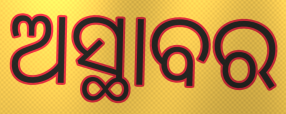
ଅସ୍ଥାବର